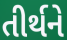
તીર્થને